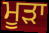
ਮੂੜਾ